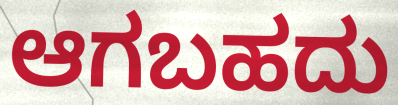
ಆಗಬಹದು